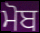
ਮੋਬ